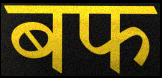
बफ